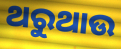
ଥରୁଥାଉ